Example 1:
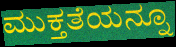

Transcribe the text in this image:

ಮುಕ್ತತೆಯನ್ನೂ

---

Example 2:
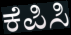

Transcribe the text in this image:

ಕೆಪಿಸಿ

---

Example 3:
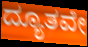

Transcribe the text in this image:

ದ್ಯೂತವೇ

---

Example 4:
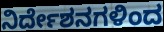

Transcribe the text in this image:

ನಿರ್ದೇಶನಗಳಿಂದ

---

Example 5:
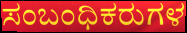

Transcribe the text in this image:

ಸಂಬಂಧಿಕರುಗಳ